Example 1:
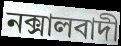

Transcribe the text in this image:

নক্সালবাদী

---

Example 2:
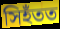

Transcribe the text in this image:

সিহঁতত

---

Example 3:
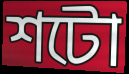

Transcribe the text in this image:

শটো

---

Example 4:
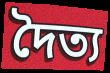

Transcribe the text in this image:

দৈত্য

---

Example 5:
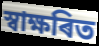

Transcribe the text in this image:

স্বাক্ষৰিত